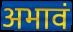
अभावं